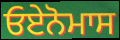
ਓਏਨੋਮਾਸ